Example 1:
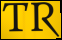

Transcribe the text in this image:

TR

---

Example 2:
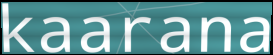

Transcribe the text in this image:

kaarana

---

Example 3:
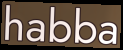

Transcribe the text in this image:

habba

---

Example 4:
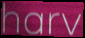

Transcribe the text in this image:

harv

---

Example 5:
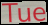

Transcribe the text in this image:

Tue